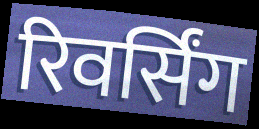
रिवर्सिंग